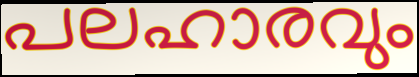
പലഹാരവും